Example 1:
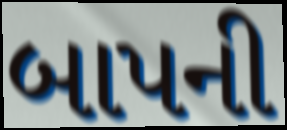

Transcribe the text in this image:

બાપની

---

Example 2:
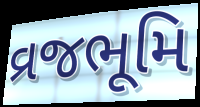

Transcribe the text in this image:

વ્રજભૂમિ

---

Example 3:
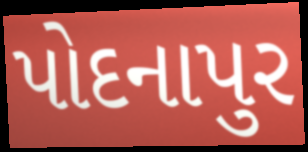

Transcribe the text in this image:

પોદનાપુર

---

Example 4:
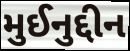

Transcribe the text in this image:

મુઈનુદ્દીન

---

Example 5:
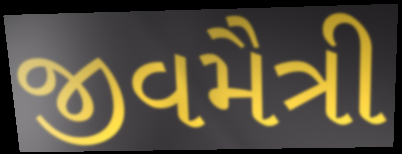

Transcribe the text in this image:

જીવમૈત્રી